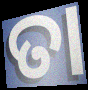
ତା